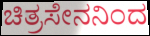
ಚಿತ್ರಸೇನನಿಂದ